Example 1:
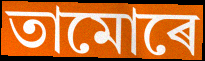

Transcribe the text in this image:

তামোৰে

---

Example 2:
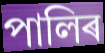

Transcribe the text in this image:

পালিৰ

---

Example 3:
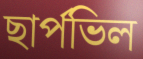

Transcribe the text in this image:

ছাৰ্পভিল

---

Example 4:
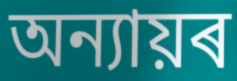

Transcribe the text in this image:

অন্যায়ৰ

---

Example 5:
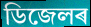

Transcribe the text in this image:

ডিজেলৰ